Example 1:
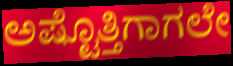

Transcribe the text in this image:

ಅಷ್ಟೊತ್ತಿಗಾಗಲೇ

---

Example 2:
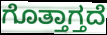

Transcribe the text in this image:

ಗೊತ್ತಾಗ್ತದೆ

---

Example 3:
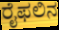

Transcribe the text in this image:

ರೈಫಲಿನ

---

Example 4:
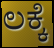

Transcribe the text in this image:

ಲಕ್ಕೆ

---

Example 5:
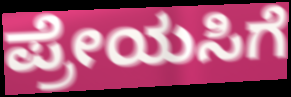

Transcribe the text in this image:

ಪ್ರೇಯಸಿಗೆ